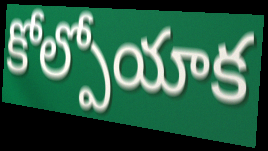
కోల్పోయాక